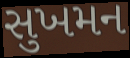
સુખમન